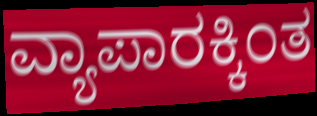
ವ್ಯಾಪಾರಕ್ಕಿಂತ